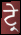
ਟ੍ਰੇ